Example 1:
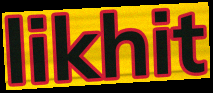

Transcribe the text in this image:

likhit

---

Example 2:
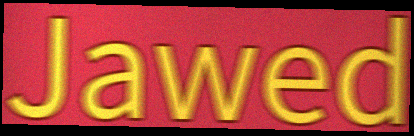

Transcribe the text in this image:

Jawed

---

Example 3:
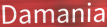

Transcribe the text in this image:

Damania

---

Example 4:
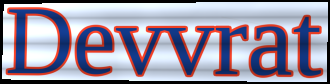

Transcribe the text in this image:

Devvrat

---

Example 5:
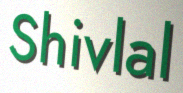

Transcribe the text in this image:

Shivlal